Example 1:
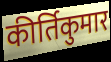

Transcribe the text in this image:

कीर्तिकुमार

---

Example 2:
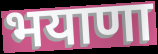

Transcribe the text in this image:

भयाणा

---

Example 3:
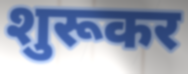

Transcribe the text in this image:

शुरूकर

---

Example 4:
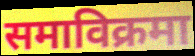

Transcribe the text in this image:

समाविक्रमा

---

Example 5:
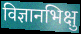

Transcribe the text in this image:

विज्ञानभिक्षु